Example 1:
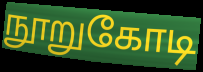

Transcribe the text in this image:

நூறுகோடி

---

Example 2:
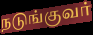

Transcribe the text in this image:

நடுங்குவர்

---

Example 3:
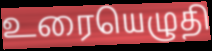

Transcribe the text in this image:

உரையெழுதி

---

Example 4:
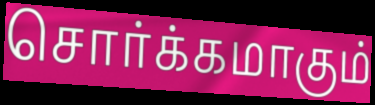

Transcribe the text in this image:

சொர்க்கமாகும்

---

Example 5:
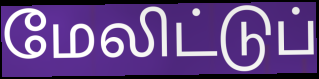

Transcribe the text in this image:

மேலிட்டுப்